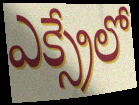
ఎక్స్రేలో